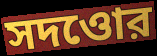
সদওোর